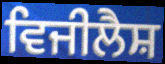
ਵਿਜੀਲੈਸ਼